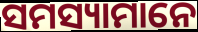
ସମସ୍ୟାମାନେ